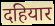
दहियार